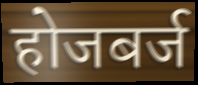
होजबर्ज